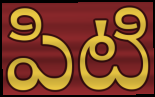
పిటి